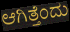
ಆಗಿತ್ತೆಂದು